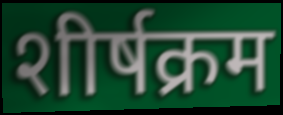
शीर्षक्रम